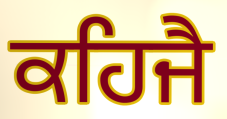
ਕਹਿਜੈ